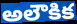
అలౌకిక